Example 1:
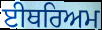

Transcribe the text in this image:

ਈਥਰਿਅਮ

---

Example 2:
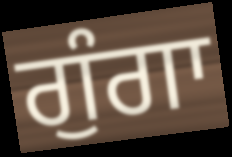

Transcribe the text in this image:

ਗੁੰਗਾ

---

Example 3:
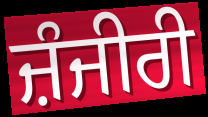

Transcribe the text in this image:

ਜ਼ੰਜੀਰੀ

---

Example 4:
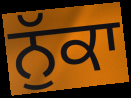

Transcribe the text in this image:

ਨੁੱਕਾ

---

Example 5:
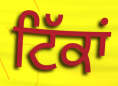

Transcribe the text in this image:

ਟਿੱਕਾਂ